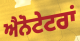
ਐਨੋਟੇਟਰਾਂ